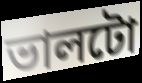
ভালটো